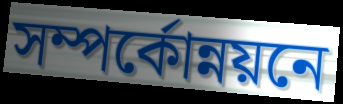
সম্পর্কোন্নয়নে